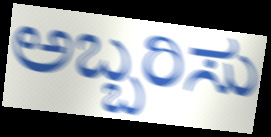
ಅಬ್ಬರಿಸು